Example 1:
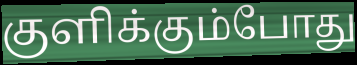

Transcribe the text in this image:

குளிக்கும்போது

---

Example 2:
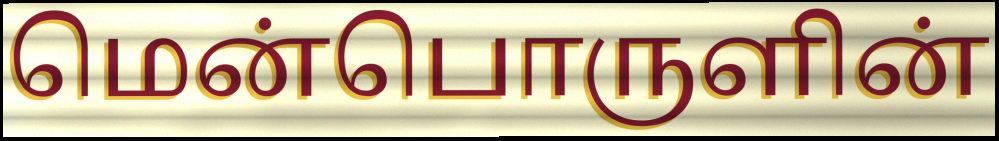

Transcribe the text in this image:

மென்பொருளின்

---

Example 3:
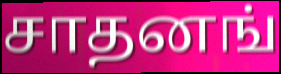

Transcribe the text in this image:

சாதனங்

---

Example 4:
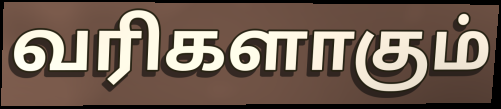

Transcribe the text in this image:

வரிகளாகும்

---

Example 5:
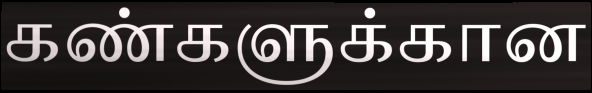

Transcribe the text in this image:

கண்களுக்கான